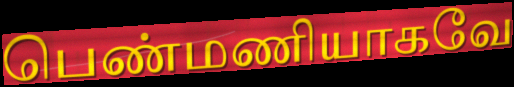
பெண்மணியாகவே